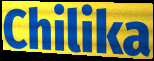
Chilika